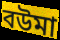
বউমা